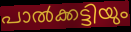
പാൽക്കട്ടിയും